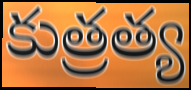
కుత్రత్య